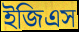
ইজিএস